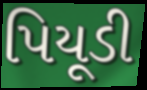
પિયૂડી